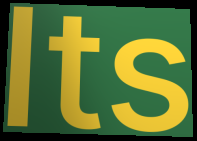
Its